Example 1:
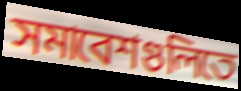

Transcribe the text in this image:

সমাবেশগুলিতে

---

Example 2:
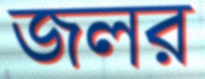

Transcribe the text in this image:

জলর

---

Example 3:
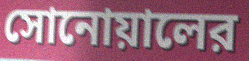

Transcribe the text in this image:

সোনোয়ালের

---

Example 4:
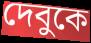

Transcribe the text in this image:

দেবুকে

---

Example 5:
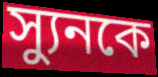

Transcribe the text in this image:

স্যুনকে